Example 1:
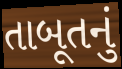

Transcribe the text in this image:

તાબૂતનું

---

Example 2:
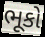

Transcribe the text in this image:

ભૂકો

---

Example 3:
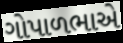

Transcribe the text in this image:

ગોપાળભાએ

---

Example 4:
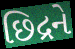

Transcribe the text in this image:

છિદ્રને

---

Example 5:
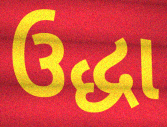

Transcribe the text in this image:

ઉદ્ધા